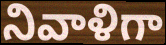
నివాళిగా